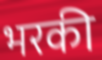
भरकी